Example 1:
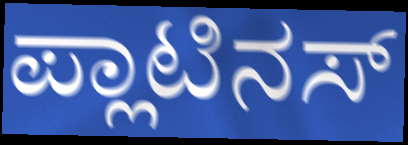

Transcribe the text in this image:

ಪ್ಲಾಟಿನಸ್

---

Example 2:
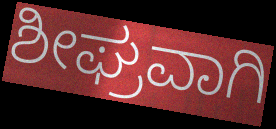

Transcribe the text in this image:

ಶೀಘ್ರವಾಗಿ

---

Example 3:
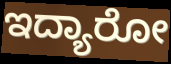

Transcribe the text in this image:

ಇದ್ಯಾರೋ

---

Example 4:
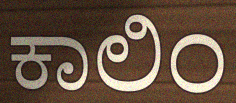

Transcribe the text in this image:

ಕಾಲಿಂ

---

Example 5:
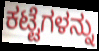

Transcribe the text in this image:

ಕಟ್ಟೆಗಳನ್ನು